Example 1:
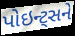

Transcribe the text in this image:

પોઇન્ટ્સને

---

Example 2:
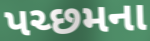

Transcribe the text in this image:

પચ્છમના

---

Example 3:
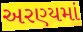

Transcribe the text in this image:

અરણ્યમાં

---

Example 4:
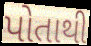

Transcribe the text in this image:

પોતાથી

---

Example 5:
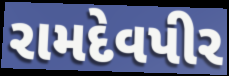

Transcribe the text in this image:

રામદેવપીર